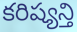
కరిష్యన్తి